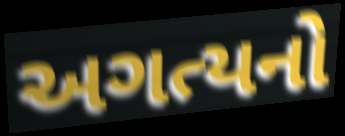
અગત્યનો